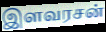
இளவரசன்